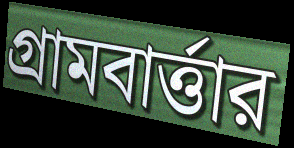
গ্রামবার্ত্তার